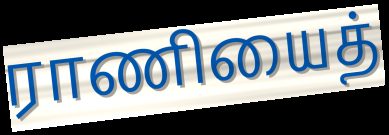
ராணியைத்